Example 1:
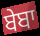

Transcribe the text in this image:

ਬੇਬਾ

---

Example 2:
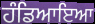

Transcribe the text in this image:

ਹੰਡਿਆਇਆ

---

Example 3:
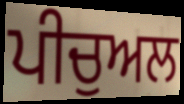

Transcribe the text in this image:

ਪੀਚੁਅਲ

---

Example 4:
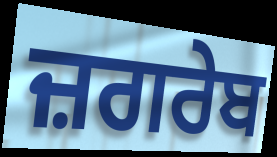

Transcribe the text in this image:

ਜ਼ਗਰੇਬ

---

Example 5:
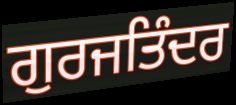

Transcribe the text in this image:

ਗੁਰਜਤਿੰਦਰ